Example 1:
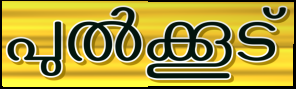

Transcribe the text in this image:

പുൽക്കൂട്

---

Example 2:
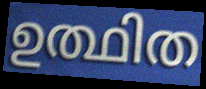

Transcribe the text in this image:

ഉത്ഥിത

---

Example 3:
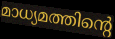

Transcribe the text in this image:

മാധ്യമത്തിന്റെ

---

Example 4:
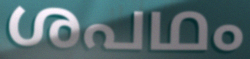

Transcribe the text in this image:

ശപഥം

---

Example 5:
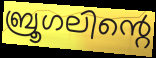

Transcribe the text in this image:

ബ്രൂഗലിന്റെ